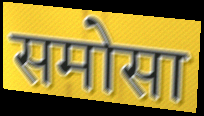
समोसा